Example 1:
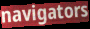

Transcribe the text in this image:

navigators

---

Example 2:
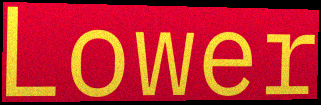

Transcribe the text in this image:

Lower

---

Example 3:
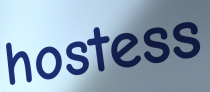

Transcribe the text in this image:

hostess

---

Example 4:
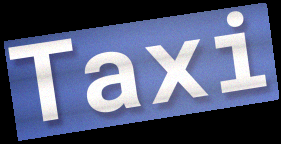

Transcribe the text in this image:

Taxi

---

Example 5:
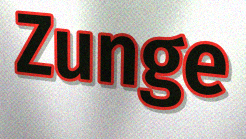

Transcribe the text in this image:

Zunge